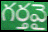
గర్తవై